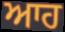
ਆਹ